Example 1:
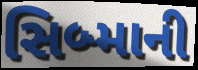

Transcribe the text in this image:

સિબ્માની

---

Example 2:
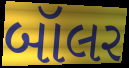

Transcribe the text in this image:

બૉલર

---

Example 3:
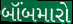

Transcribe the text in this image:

બૉંબમારો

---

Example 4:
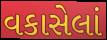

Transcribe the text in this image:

વકાસેલાં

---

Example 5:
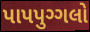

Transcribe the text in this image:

પાપપુગ્ગલો